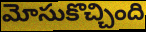
మోసుకొచ్చింది